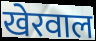
खेरवाल